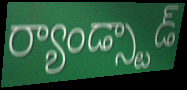
ర్యాండ్స్టాడ్